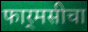
फार्मसीचा